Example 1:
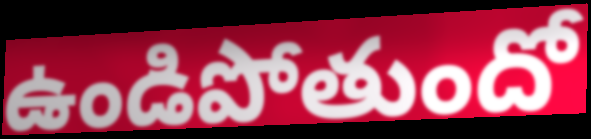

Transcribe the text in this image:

ఉండిపోతుందో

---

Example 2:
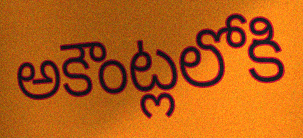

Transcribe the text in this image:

అకౌంట్లలోకి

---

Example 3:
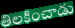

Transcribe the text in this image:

తిలకించాడు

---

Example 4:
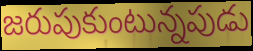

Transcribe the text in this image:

జరుపుకుంటున్నపుడు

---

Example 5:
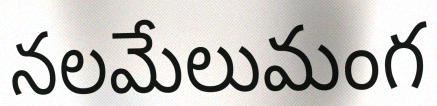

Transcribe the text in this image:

నలమేలుమంగ